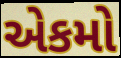
એકમો